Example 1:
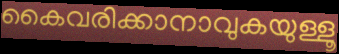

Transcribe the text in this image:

കൈവരിക്കാനാവുകയുള്ളൂ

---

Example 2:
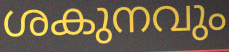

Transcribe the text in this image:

ശകുനവും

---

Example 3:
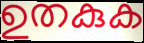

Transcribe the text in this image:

ഉതകുക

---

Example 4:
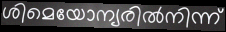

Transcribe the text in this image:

ശിമെയോന്യരിൽനിന്ന്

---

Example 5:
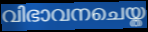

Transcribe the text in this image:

വിഭാവനചെയ്ത